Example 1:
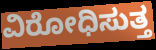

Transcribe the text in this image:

ವಿರೋಧಿಸುತ್ತ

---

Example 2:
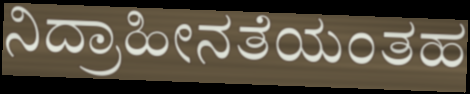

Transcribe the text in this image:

ನಿದ್ರಾಹೀನತೆಯಂತಹ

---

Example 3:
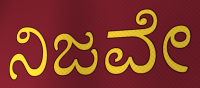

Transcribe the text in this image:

ನಿಜವೇ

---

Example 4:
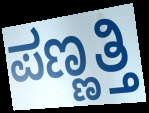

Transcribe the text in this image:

ಪಣ್ಣತ್ತಿ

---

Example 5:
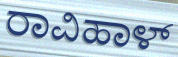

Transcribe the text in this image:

ರಾವಿಹಾಳ್